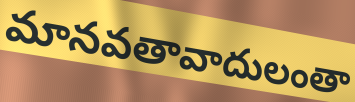
మానవతావాదులంతా